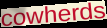
cowherds